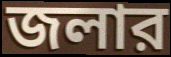
জলার